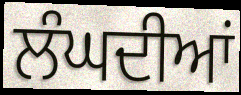
ਲੰਘਦੀਆਂ